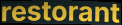
restorant